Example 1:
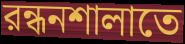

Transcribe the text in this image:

রন্ধনশালাতে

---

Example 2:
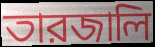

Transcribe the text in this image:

তারজালি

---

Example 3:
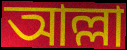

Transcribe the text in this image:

আল্লা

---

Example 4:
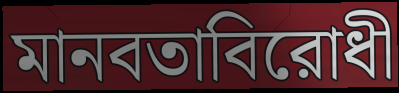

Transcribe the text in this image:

মানবতাবিরোধী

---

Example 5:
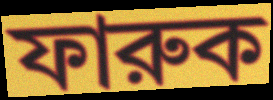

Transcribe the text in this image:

ফারুক